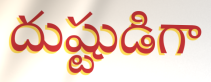
దుష్టుడిగా